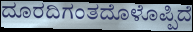
ದೂರದಿಗಂತದೊಳೊಪ್ಪಿದೆ